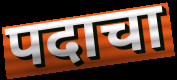
पदाचा